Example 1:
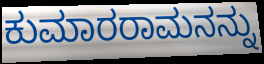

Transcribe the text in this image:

ಕುಮಾರರಾಮನನ್ನು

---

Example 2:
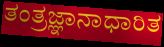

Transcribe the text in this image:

ತಂತ್ರಜ್ಞಾನಾಧಾರಿತ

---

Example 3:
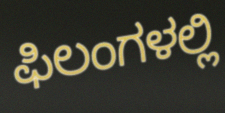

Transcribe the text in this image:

ಫಿಲಂಗಳಲ್ಲಿ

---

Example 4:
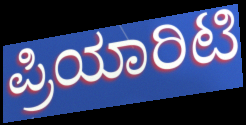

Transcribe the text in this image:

ಪ್ರಿಯಾರಿಟಿ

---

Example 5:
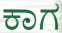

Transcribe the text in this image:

ಕಾಗ